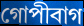
গোপীবাগ